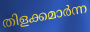
തിളക്കമാർന്ന